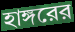
হাঙ্গরের